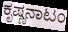
ಕೃಷ್ಣನಾಟಂ